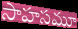
సాహసమూ